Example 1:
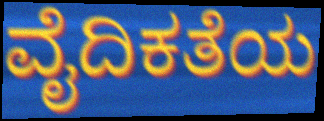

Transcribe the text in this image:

ವೈದಿಕತೆಯ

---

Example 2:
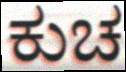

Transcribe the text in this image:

ಕುಚ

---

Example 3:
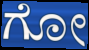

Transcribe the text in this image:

ಗೋ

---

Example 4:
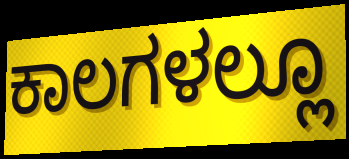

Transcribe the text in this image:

ಕಾಲಗಳಲ್ಲೂ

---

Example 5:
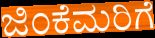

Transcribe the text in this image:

ಜಿಂಕೆಮರಿಗೆ